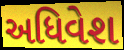
અધિવેશ